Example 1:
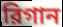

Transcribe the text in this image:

রিগান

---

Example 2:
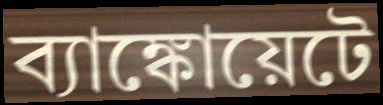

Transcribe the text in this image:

ব্যাঙ্কোয়েটে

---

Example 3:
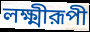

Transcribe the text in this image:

লক্ষ্মীরূপী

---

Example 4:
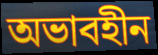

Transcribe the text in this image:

অভাবহীন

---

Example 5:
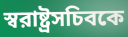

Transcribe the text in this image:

স্বরাষ্ট্রসচিবকে